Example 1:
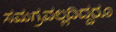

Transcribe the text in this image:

ಸಮಗ್ರವಲ್ಲದಿದ್ದರೂ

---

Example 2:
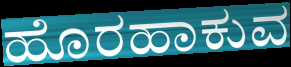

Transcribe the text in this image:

ಹೊರಹಾಕುವ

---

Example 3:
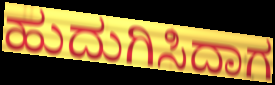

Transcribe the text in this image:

ಹುದುಗಿಸಿದಾಗ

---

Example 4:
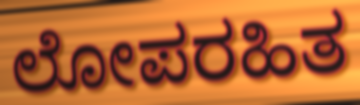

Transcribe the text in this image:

ಲೋಪರಹಿತ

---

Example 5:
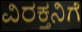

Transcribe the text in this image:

ವಿರಕ್ತನಿಗೆ